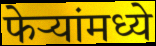
फेऱ्यांमध्ये